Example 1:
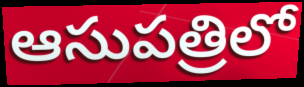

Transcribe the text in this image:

ఆసుపత్రిలో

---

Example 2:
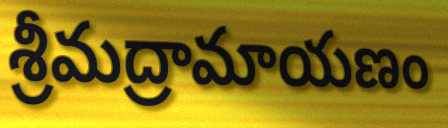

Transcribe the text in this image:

శ్రీమద్రామాయణం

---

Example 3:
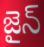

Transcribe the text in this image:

జైన్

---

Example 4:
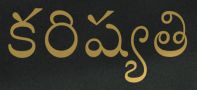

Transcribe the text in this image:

కరిష్యతి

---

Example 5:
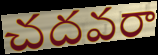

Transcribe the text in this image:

చదవరా